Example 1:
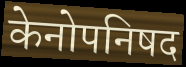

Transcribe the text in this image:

केनोपनिषद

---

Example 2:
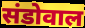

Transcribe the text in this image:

संडोवाल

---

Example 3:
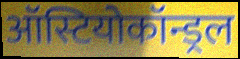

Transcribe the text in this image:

ऑस्टियोकॉन्ड्रल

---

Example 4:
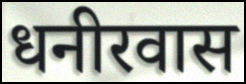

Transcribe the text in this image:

धनीरवास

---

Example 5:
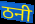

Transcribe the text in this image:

ठनी